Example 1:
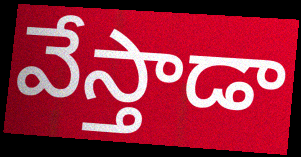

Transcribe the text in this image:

వేస్తాడా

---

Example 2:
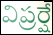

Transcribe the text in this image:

విప్రర్షే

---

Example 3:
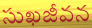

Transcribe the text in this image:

సుఖజీవన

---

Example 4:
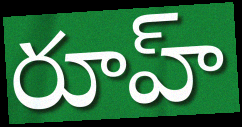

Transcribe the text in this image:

రూహ్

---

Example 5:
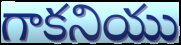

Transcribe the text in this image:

గాకనియు